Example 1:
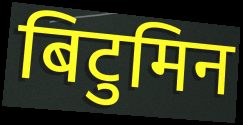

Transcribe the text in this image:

बिटुमिन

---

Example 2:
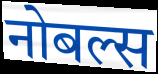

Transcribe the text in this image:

नोबल्स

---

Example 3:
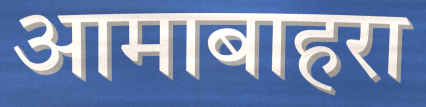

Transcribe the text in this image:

आमाबाहरा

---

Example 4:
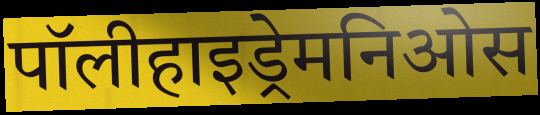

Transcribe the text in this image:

पॉलीहाइड्रेमनिओस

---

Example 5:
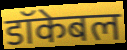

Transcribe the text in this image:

डॉकेबल